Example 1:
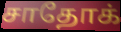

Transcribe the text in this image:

சாதோக்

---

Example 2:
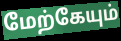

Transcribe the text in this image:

மேற்கேயும்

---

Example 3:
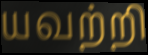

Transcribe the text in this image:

யவற்றி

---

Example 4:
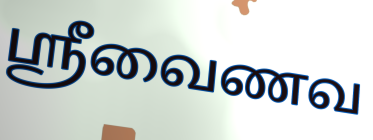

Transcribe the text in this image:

ஸ்ரீவைணவ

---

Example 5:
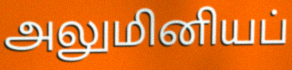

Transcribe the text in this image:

அலுமினியப்